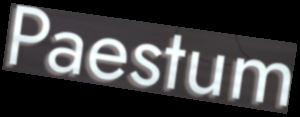
Paestum